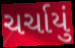
ચર્ચાયું